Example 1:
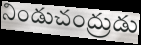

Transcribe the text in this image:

నిండుచంద్రుడు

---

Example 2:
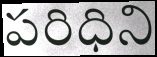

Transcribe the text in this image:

పరిధిని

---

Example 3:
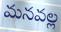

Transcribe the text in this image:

మనవల్ల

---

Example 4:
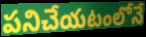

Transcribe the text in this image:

పనిచేయటంలోనే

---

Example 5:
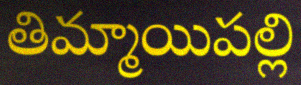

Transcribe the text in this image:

తిమ్మాయిపల్లి